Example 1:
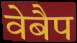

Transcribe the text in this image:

वेबैप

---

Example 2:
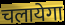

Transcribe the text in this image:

चलायेगा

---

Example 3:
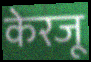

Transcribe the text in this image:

केरजू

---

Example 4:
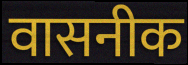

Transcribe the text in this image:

वासनीक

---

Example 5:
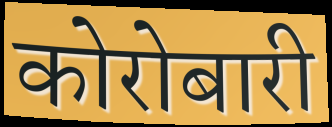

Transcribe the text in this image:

कोरोबारी